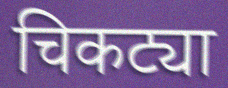
चिकट्या